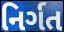
નિર્ગત